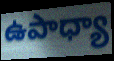
ఉపాధ్యా